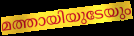
മത്തായിയുടേയും